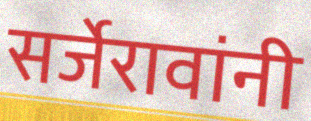
सर्जेरावांनी